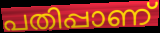
പതിപ്പാണ്